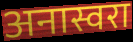
अनास्वरा